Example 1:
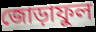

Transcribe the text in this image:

জোড়াফুল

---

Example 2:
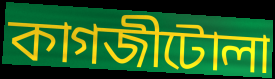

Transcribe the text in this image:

কাগজীটোলা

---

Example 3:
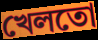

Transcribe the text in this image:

খেলতো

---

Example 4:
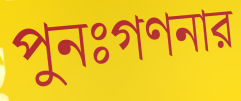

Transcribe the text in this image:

পুনঃগণনার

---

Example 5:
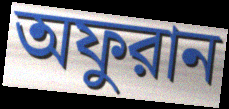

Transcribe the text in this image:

অফুরান